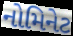
નોમિનેટ